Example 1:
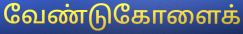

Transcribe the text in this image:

வேண்டுகோளைக்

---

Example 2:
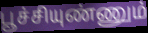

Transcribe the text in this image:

பூச்சியுண்ணும்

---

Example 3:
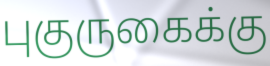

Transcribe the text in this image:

புகுருகைக்கு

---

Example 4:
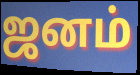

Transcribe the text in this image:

ஜனம்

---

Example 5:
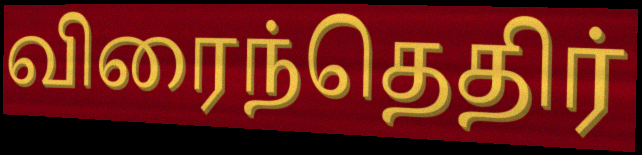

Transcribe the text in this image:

விரைந்தெதிர்